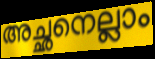
അച്ഛനെല്ലാം